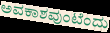
ಅವಕಾಶವುಂಟೆಂದು